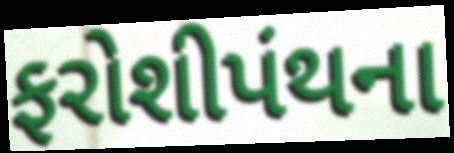
ફરોશીપંથના